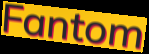
Fantom